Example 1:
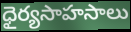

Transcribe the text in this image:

ధైర్యసాహసాలు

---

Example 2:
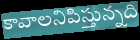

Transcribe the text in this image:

కావాలనిపిస్తున్నది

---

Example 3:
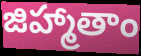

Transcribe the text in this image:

జిహ్మాతాం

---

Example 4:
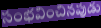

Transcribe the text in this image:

సంభవించినపుడు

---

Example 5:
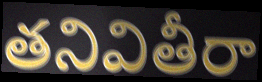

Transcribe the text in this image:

తనివితీరా